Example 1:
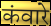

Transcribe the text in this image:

कंवारे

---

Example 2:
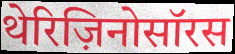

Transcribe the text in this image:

थेरिज़िनोसॉरस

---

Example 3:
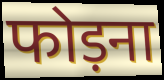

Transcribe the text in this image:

फोड़ना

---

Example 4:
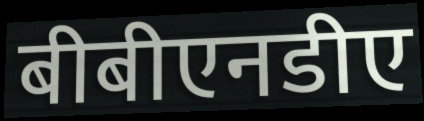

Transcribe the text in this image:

बीबीएनडीए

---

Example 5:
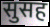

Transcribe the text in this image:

सुसह